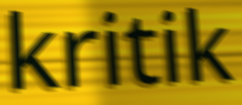
kritik